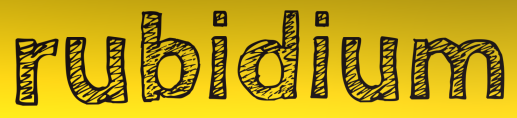
rubidium